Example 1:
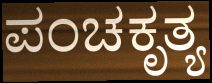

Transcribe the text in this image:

ಪಂಚಕೃತ್ಯ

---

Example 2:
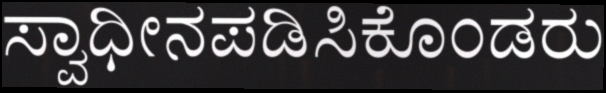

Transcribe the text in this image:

ಸ್ವಾಧೀನಪಡಿಸಿಕೊಂಡರು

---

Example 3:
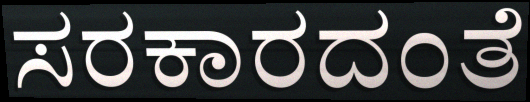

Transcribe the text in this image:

ಸರಕಾರದಂತೆ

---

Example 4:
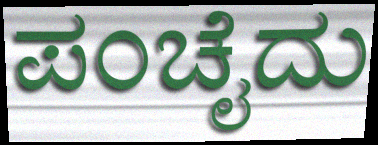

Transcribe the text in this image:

ಪಂಚೈದು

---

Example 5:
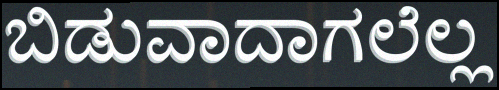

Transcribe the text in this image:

ಬಿಡುವಾದಾಗಲೆಲ್ಲ